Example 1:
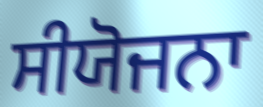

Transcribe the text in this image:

ਸੀਯੋਜਨਾ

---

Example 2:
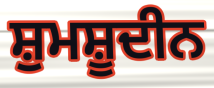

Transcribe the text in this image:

ਸ਼ੁਮਸ਼ੂਦੀਨ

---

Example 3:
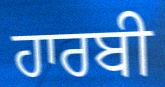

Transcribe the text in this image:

ਹਾਰਬੀ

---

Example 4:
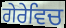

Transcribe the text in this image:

ਗੇਰੇਵਿਚ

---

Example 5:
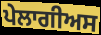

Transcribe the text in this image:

ਪੇਲਾਗੀਅਸ